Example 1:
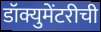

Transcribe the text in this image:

डॉक्युमेंटरीची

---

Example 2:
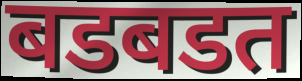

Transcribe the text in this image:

बडबडत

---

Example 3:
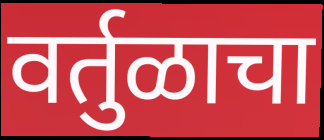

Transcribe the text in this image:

वर्तुळाचा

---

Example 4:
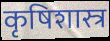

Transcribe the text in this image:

कृषिशास्त्र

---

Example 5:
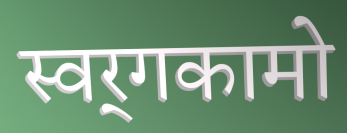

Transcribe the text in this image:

स्वर्गकामो